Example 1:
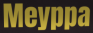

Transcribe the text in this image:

Meyppa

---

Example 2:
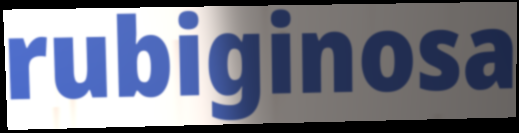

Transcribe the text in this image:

rubiginosa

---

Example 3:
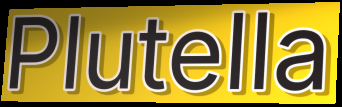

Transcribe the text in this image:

Plutella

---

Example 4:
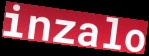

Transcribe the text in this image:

inzalo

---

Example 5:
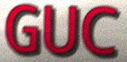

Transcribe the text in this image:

GUC